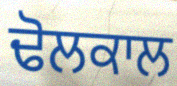
ਢੋਲਕਾਲ